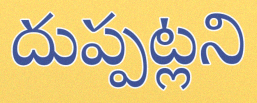
దుప్పట్లని